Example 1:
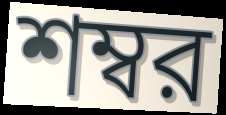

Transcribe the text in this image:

শম্বর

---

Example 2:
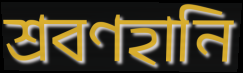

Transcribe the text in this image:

শ্রবণহানি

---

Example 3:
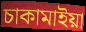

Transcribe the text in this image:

চাকামাইয়া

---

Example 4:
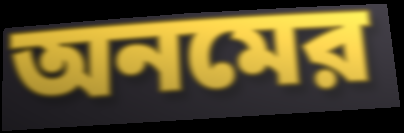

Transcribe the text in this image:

অনমের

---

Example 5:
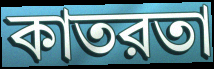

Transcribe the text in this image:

কাতরতা